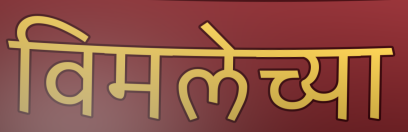
विमलेच्या